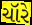
ચૉરે